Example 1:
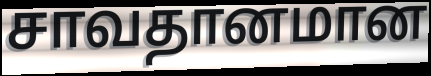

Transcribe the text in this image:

சாவதானமான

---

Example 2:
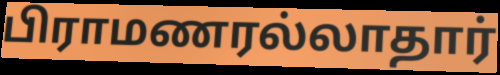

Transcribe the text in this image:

பிராமணரல்லாதார்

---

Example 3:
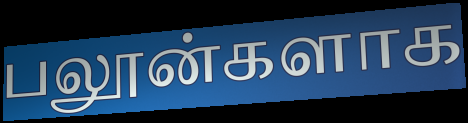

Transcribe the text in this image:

பலூன்களாக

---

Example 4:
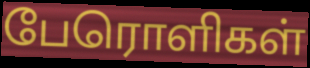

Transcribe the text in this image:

பேரொளிகள்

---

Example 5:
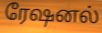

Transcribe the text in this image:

ரேஷனல்